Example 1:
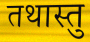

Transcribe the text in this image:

तथास्तु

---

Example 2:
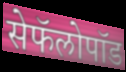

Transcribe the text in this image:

सेफॅलोपॉड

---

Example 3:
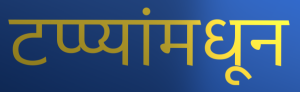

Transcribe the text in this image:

टप्प्यांमधून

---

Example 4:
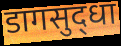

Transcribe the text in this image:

डागसुद्धा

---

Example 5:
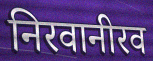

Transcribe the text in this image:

निरवानीरव